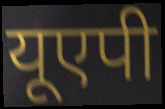
यूएपी